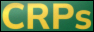
CRPs